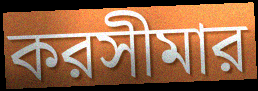
করসীমার